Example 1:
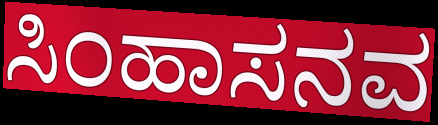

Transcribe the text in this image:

ಸಿಂಹಾಸನವ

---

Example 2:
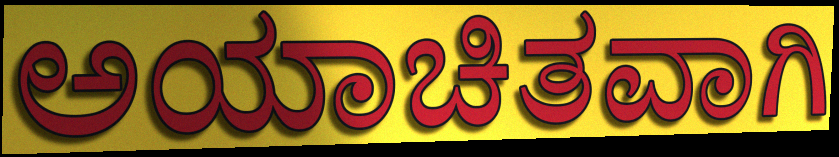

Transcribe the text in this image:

ಅಯಾಚಿತವಾಗಿ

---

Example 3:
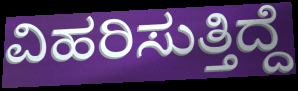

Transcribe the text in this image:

ವಿಹರಿಸುತ್ತಿದ್ದೆ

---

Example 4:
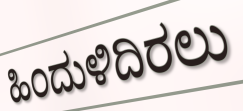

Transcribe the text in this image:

ಹಿಂದುಳಿದಿರಲು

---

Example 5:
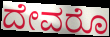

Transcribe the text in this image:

ದೇವರೊ